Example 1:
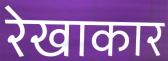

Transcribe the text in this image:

रेखाकार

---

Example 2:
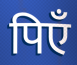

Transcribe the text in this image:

पिएँ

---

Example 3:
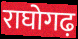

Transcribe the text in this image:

राघोगढ़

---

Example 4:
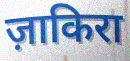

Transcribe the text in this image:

ज़ाकिरा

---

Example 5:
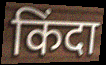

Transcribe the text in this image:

किंदा